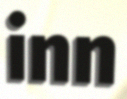
inn